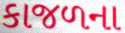
કાજળના